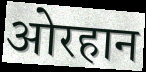
ओरहान